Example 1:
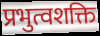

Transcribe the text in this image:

प्रभुत्वशक्ति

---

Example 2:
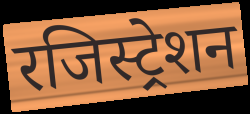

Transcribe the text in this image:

रजिस्ट्रेशन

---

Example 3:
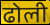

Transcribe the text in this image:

ढोली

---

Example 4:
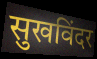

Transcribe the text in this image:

सुखविंदर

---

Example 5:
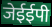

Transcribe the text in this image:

जेईईपी